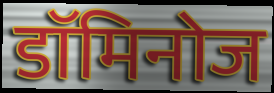
डॉमिनोज